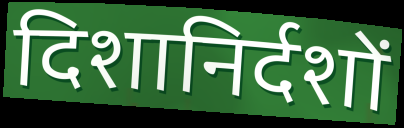
दिशानिर्दशों